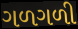
ગળગળી